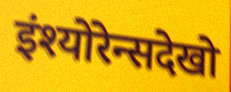
इंश्योरेन्सदेखो